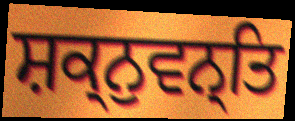
ਸ਼ਕ੍ਨੁਵਨ੍ਤਿ